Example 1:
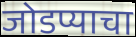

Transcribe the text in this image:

जोडप्याचा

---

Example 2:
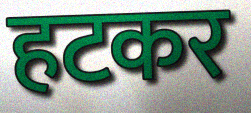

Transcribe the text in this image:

हटकर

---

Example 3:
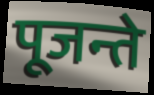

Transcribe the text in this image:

पूजन्ते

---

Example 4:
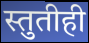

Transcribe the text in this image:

स्तुतीही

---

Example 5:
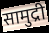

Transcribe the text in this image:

सामुद्री